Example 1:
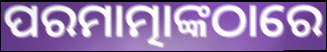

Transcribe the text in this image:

ପରମାତ୍ମାଙ୍କଠାରେ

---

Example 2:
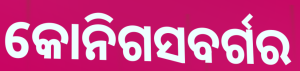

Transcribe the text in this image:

କୋନିଗସବର୍ଗର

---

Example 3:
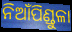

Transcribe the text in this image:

ନିଆଁପିଣ୍ଡୁଳା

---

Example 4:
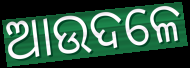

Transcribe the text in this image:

ଆଉଦଳେ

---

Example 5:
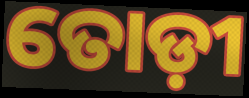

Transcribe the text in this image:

ତୋଡ଼ୀ